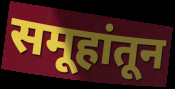
समूहांतून